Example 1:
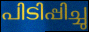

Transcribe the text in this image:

പിടിപ്പിച്ചു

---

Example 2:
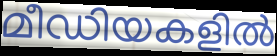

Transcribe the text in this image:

മീഡിയകളിൽ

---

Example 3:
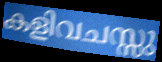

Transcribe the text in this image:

കളിവചസ്സു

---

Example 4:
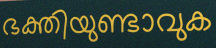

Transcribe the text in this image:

ഭക്തിയുണ്ടാവുക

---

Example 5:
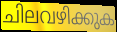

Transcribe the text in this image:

ചിലവഴിക്കുക